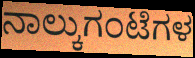
ನಾಲ್ಕುಗಂಟೆಗಳ